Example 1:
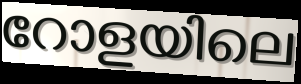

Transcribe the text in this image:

റോളയിലെ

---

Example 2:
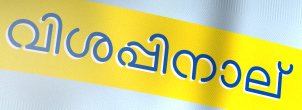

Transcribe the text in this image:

വിശപ്പിനാല്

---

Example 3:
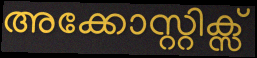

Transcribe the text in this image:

അക്കോസ്റ്റിക്സ്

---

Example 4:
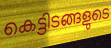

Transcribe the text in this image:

കെട്ടിടങ്ങളുടെ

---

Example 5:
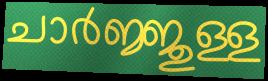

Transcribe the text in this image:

ചാർജ്ജുള്ള